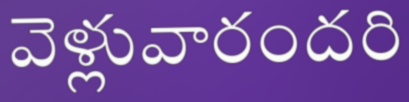
వెళ్లువారందరి